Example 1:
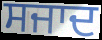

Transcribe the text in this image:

ਸਜਾਦ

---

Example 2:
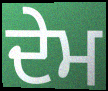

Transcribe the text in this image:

ਦੇਮ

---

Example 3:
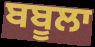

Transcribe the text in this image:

ਬਬੂਲਾ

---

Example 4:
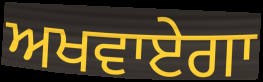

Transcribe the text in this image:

ਅਖਵਾਏਗਾ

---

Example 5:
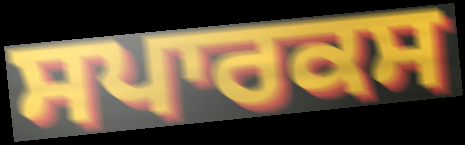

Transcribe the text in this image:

ਸਪਾਰਕਸ